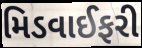
મિડવાઈફરી